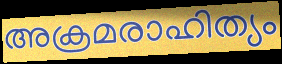
അക്രമരാഹിത്യം